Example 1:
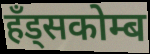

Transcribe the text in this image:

हँड्सकोम्ब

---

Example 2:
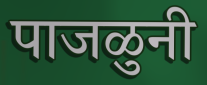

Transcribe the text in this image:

पाजळुनी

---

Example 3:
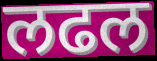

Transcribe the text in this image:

लढल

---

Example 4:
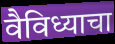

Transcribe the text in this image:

वैविध्याचा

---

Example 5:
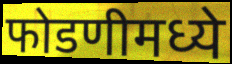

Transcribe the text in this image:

फोडणीमध्ये